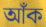
আঁক